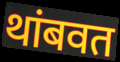
थांबवत